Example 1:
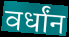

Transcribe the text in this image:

वर्धांन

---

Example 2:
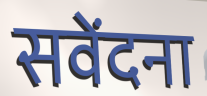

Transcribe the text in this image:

सवेंदना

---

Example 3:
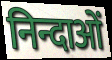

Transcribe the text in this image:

निन्दाओं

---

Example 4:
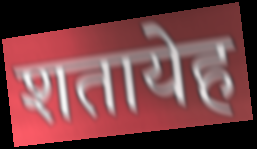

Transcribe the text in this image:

शतायेह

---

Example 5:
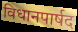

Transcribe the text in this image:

विधानपार्षद